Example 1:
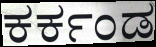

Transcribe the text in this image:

ಕರ್ಕಂಡ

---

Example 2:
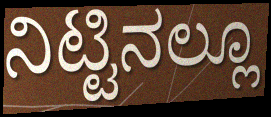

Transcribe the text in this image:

ನಿಟ್ಟಿನಲ್ಲೂ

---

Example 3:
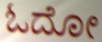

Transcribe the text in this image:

ಓದೋ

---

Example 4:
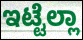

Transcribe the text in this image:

ಇಟ್ಟೆಲ್ಲಾ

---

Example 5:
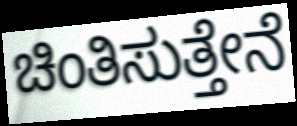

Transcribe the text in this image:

ಚಿಂತಿಸುತ್ತೇನೆ